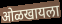
ओळखायला